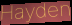
Hayden